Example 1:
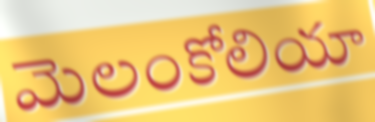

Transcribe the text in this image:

మెలంకోలియా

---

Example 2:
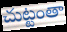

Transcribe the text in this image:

చుట్టంతా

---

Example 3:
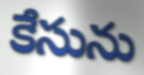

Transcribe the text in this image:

కేసును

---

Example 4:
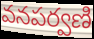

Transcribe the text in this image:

వనపర్వణి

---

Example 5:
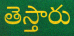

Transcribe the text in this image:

తెస్తారు